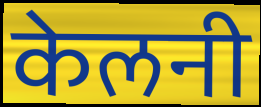
केलनी